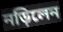
নড়িলেন